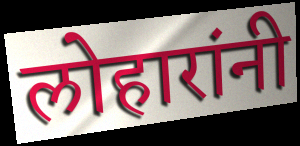
लोहारांनी